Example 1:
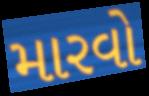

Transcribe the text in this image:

મારવો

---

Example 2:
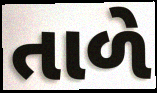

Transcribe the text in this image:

તાળે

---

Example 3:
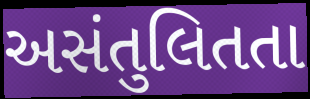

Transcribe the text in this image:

અસંતુલિતતા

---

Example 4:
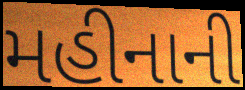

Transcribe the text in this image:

મહીનાની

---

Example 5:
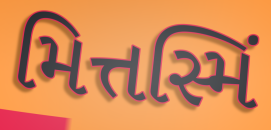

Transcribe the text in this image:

મિત્તસ્મિં